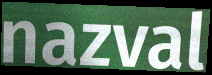
nazval